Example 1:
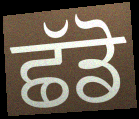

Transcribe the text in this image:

ਛੱਡੋ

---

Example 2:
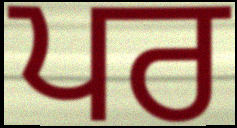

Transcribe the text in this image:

ਪਰ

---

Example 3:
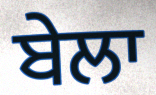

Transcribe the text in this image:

ਬੇਲਾ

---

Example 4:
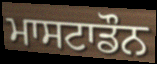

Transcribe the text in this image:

ਮਾਸਟਾਡੌਨ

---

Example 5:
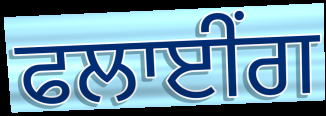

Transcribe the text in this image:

ਫਲਾਈਂਗ